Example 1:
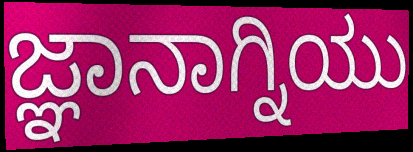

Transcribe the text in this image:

ಜ್ಞಾನಾಗ್ನಿಯು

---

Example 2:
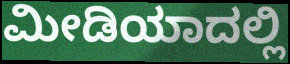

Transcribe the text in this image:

ಮೀಡಿಯಾದಲ್ಲಿ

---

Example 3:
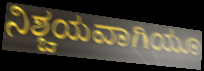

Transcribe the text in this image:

ನಿಶ್ಚಯವಾಗಿಯೂ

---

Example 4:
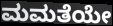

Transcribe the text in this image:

ಮಮತೆಯೇ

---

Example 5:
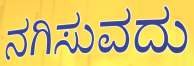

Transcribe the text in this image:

ನಗಿಸುವದು